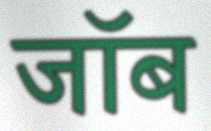
जॉब